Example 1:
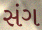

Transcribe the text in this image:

સંગ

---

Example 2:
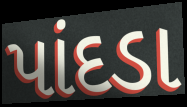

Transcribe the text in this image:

પાંદડા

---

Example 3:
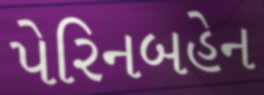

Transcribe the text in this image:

પેરિનબહેન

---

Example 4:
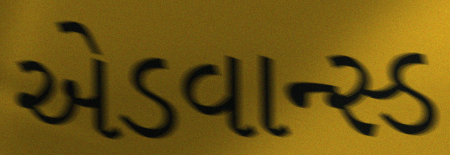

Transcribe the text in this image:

એડવાન્સ્ડ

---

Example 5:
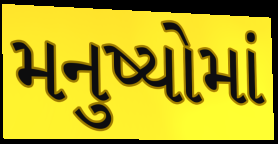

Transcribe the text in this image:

મનુષ્યોમાં